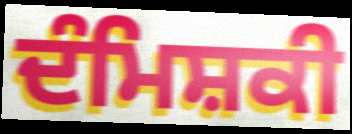
ਦੰਮਿਸ਼ਕੀ